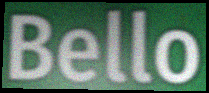
Bello